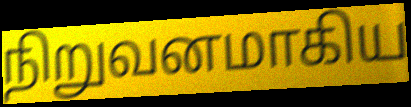
நிறுவனமாகிய